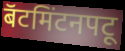
बॅटमिंटनपटू